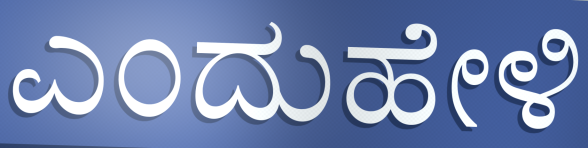
ಎಂದುಹೇಳಿ